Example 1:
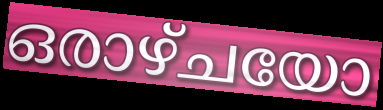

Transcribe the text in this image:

ഒരാഴ്ചയോ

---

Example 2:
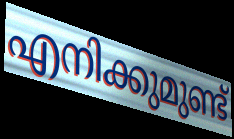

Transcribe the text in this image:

എനിക്കുമുണ്ട്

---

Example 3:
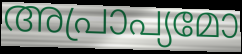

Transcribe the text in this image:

അപ്രാപ്യമോ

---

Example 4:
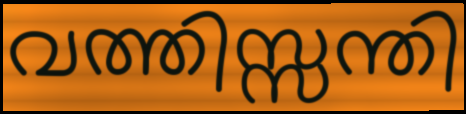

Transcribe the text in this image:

വത്തിസ്സന്തി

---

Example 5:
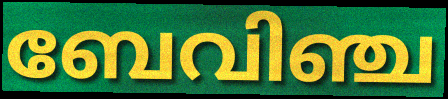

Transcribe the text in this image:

ബേവിഞ്ച